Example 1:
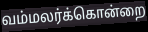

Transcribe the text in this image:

வம்மலர்க்கொன்றை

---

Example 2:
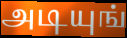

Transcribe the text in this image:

அடியுங்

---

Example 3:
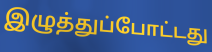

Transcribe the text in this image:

இழுத்துப்போட்டது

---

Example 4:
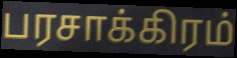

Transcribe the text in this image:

பரசாக்கிரம்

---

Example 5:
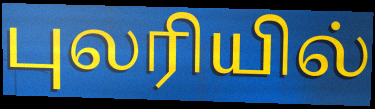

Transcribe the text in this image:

புலரியில்